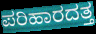
ಪರಿಹಾರದತ್ತ